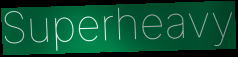
Superheavy